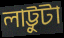
লাট্টুটা